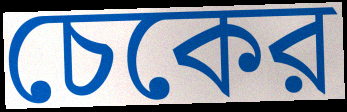
চেকের